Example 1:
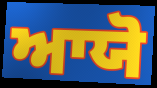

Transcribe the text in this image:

ਆਯੋ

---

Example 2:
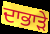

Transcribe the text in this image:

ਦਾਭਾੜੇ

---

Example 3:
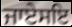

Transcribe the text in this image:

ਜਾਏਸਇ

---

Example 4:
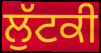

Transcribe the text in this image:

ਲੁੱਟਕੀ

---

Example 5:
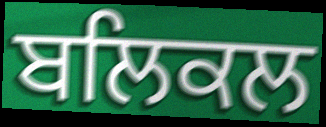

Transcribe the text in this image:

ਬਲਿਕਲ